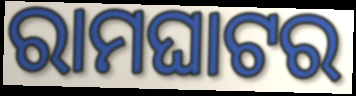
ରାମଘାଟର